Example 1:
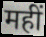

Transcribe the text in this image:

महीं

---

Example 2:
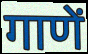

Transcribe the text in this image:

गाणें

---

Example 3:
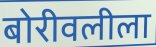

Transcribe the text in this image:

बोरीवलीला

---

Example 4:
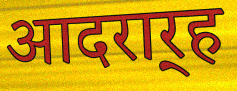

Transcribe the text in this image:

आदरार्ह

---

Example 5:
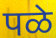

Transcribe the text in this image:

पळे